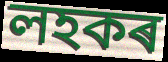
লহকৰ